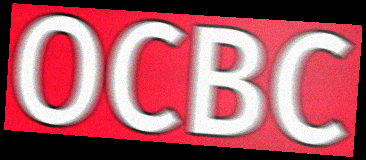
OCBC